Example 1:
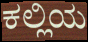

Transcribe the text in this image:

ಕಲ್ಲಿಯ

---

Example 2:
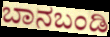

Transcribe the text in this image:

ಬಾನಬಂಡಿ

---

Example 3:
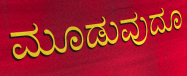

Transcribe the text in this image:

ಮೂಡುವುದೂ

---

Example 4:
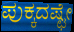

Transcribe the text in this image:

ಪುಕ್ಕದಷ್ಟೇ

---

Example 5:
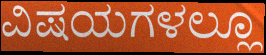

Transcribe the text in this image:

ವಿಷಯಗಳಲ್ಲೂ